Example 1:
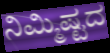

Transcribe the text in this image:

ನಿಮ್ಮಿಷ್ಟದ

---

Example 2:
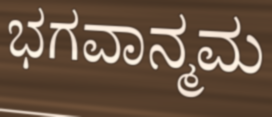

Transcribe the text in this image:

ಭಗವಾನ್ಮಮ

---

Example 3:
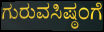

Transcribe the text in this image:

ಗುರುವಸಿಷ್ಠಂಗೆ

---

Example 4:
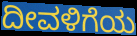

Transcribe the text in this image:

ದೀವಳಿಗೆಯ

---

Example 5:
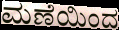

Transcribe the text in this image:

ಮಣೆಯಿಂದ